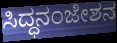
ಸಿದ್ಧನಂಜೇಶನ